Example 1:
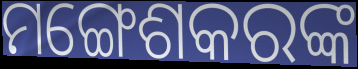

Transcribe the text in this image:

ମଙ୍ଗେଶକରଙ୍କ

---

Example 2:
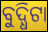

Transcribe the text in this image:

ବୁଦ୍ଧିଟା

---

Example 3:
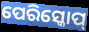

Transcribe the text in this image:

ପେରିସ୍କୋପ୍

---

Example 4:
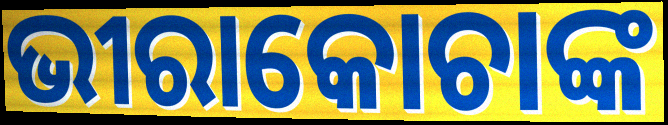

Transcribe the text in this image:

ଭୀରାକୋଚାଙ୍କ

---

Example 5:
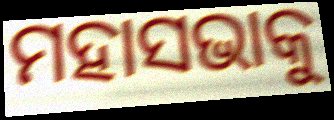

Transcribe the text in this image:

ମହାସଭାକୁ